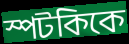
স্পটকিকে